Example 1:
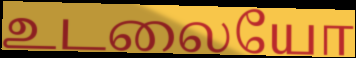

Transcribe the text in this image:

உடலையோ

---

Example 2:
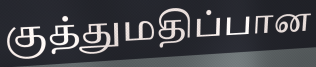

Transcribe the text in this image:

குத்துமதிப்பான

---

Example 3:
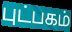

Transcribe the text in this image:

புட்பகம்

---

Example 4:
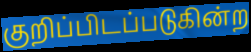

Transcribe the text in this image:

குறிப்பிடப்படுகின்ற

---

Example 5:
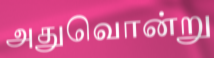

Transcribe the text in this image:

அதுவொன்று